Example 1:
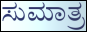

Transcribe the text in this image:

ಸುಮಾತ್ರ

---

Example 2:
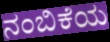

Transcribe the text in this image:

ನಂಬಿಕೆಯ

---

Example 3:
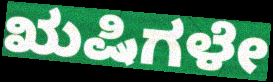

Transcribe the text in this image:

ಋಷಿಗಳೇ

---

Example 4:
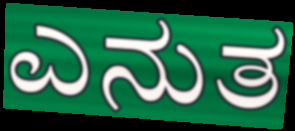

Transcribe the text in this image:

ಎನುತ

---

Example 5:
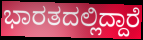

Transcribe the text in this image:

ಭಾರತದಲ್ಲಿದ್ದಾರೆ